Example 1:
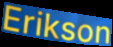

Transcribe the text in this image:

Erikson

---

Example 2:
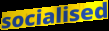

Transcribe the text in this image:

socialised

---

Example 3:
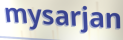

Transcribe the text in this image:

mysarjan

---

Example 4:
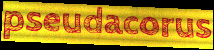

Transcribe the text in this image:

pseudacorus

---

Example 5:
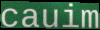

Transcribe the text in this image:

cauim